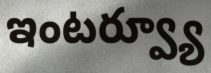
ఇంటర్వ్యూ